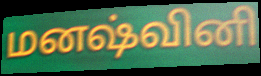
மனஷ்வினி